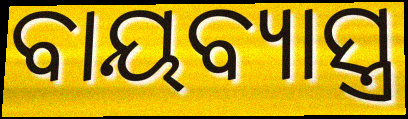
ବାୟବ୍ୟାସ୍ତ୍ର